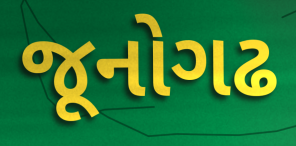
જૂનોગઢ